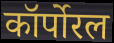
कॉर्पोरल